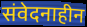
संवेदनाहीन